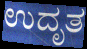
ಉದೃತ